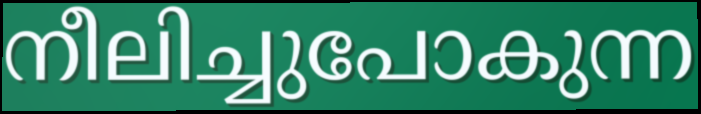
നീലിച്ചുപോകുന്ന